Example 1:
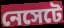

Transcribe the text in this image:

নেসেটে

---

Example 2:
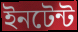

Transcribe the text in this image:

ইনটেন্ট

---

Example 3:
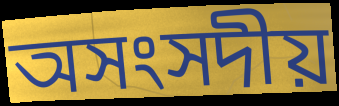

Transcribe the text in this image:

অসংসদীয়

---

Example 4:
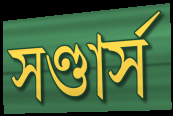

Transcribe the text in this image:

সণ্ডার্স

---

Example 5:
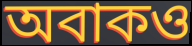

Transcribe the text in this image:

অবাকও